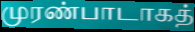
முரண்பாடாகத்